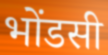
भोंडसी